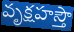
వృక్షహస్తౌ